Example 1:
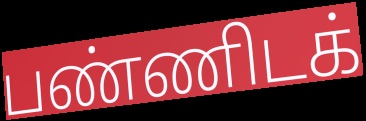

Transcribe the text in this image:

பண்ணிடக்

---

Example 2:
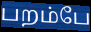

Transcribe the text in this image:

பறம்பே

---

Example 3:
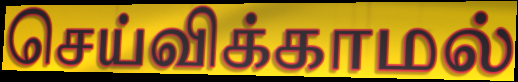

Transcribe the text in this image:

செய்விக்காமல்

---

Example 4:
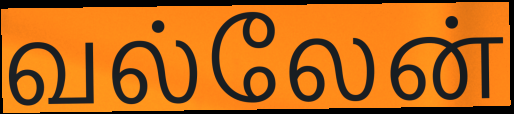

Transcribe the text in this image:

வல்லேன்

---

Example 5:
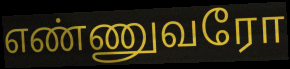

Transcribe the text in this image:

எண்ணுவரோ